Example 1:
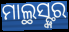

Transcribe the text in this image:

ମାଲ୍ଥସ୍ଙ୍କର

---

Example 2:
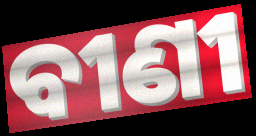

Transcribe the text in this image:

ବୀଣୀ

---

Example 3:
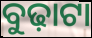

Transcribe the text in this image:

ବୁଢ଼ାଟା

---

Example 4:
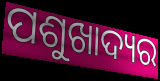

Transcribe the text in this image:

ପଶୁଖାଦ୍ୟର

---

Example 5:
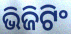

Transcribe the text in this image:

ଭିଜିଟିଂ